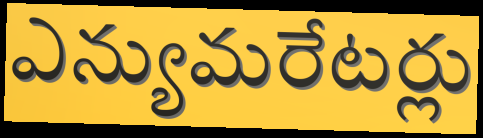
ఎన్యుమరేటర్లు